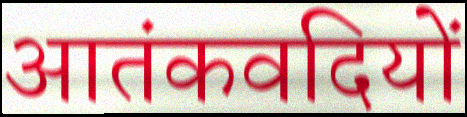
आतंकवदियों